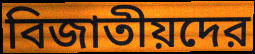
বিজাতীয়দের